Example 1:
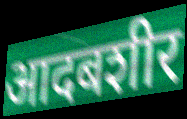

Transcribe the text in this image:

आदबशीर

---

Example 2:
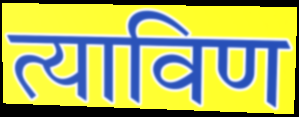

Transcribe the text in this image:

त्याविण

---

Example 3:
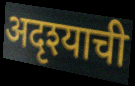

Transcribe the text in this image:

अदृश्याची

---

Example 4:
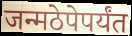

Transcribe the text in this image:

जन्मठेपेपर्यंत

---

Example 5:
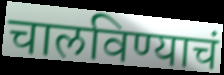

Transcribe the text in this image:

चालविण्याचं